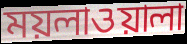
ময়লাওয়ালা